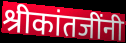
श्रीकांतजींनी